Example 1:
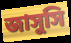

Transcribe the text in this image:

জাসুসি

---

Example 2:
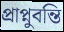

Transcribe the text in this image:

প্রাপ্নুবন্তি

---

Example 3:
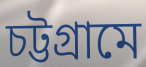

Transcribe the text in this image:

চট্টগ্রামে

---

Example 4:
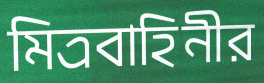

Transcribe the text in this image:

মিত্রবাহিনীর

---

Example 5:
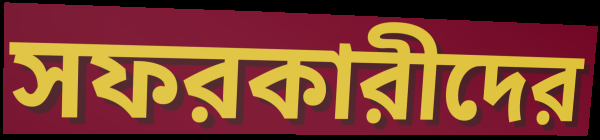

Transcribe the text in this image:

সফরকারীদের